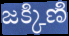
జక్కిణి